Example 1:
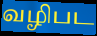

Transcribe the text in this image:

வழிபட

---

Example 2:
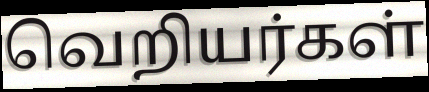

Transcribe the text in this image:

வெறியர்கள்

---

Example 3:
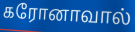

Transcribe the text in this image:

கரோனாவால்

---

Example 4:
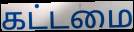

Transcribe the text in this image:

கட்டமை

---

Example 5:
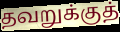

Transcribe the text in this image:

தவறுக்குத்